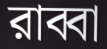
রাব্বা